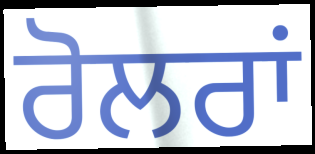
ਰੋਲਰਾਂ